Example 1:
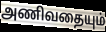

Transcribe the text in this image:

அணிவதையும்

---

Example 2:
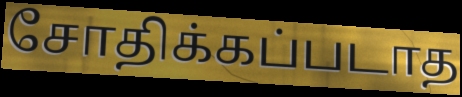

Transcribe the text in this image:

சோதிக்கப்படாத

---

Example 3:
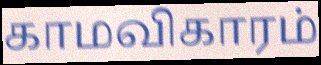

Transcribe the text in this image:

காமவிகாரம்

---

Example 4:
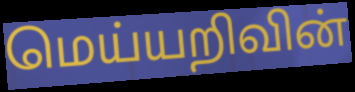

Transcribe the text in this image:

மெய்யறிவின்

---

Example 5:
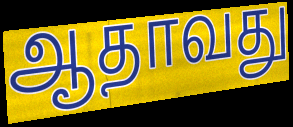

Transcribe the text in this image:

ஆதாவது